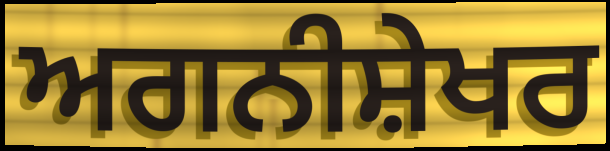
ਅਗਨੀਸ਼ੇਖਰ